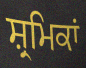
ਸ਼੍ਰਮਿਕਾਂ